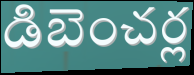
డిబెంచర్ల